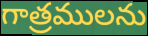
గాత్రములను